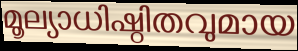
മൂല്യാധിഷ്ഠിതവുമായ